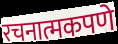
रचनात्मकपणे